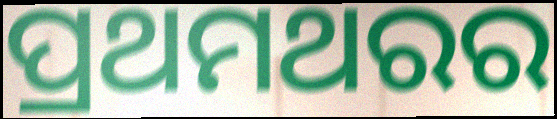
ପ୍ରଥମଥରର